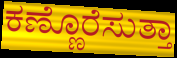
ಕಣ್ಣೊರೆಸುತ್ತಾ